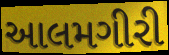
આલમગીરી